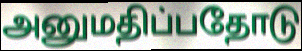
அனுமதிப்பதோடு